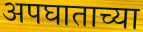
अपघाताच्या